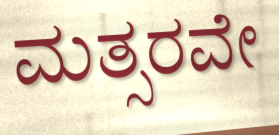
ಮತ್ಸರವೇ